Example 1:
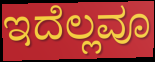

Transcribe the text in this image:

ಇದೆಲ್ಲವೂ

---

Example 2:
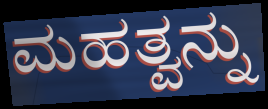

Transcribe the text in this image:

ಮಹತ್ವನ್ನು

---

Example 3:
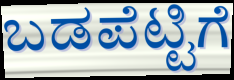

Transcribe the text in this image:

ಬಡಪೆಟ್ಟಿಗೆ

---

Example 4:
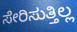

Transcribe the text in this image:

ಸೇರಿಸುತ್ತಿಲ್ಲ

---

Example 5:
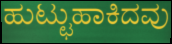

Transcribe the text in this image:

ಹುಟ್ಟುಹಾಕಿದವು